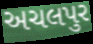
અચલપુર